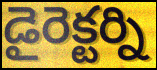
డైరెక్టర్ని